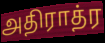
அதிராத்ர